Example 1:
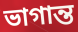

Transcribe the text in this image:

ভাগান্ত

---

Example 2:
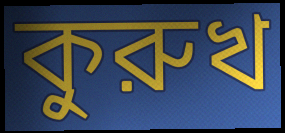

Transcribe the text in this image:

কুৰুখ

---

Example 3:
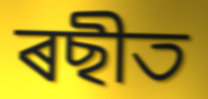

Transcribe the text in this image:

ৰছীত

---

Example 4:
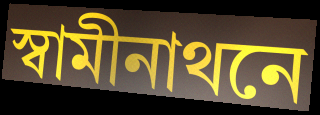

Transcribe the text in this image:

স্বামীনাথনে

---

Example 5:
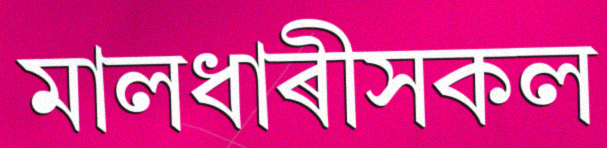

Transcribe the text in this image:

মালধাৰীসকল